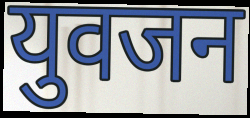
युवजन